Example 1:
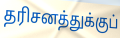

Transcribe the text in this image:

தரிசனத்துக்குப்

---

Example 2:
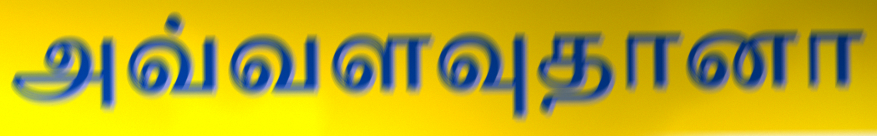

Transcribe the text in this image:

அவ்வளவுதானா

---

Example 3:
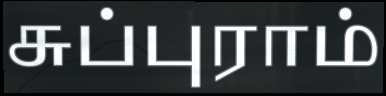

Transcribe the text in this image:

சுப்புராம்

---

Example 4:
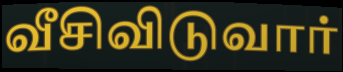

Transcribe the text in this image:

வீசிவிடுவார்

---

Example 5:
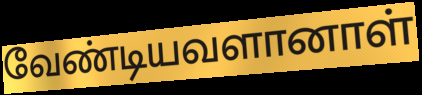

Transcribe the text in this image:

வேண்டியவளானாள்